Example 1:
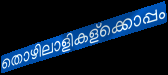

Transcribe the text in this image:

തൊഴിലാളികള്ക്കൊപ്പം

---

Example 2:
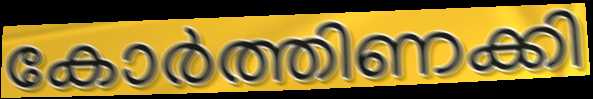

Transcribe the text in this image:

കോർത്തിണക്കി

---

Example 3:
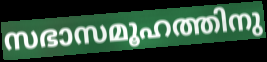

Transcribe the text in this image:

സഭാസമൂഹത്തിനു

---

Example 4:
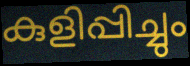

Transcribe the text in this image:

കുളിപ്പിച്ചും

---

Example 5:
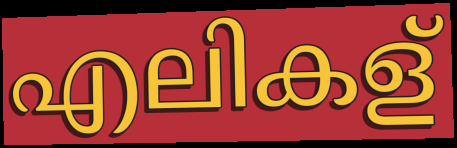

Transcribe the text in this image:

എലികള്